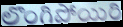
లొంగిపోయిరి